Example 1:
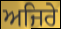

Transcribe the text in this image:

ਅਜਿਰੇ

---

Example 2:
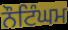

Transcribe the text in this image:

ਨੌਟਿੰਘਮ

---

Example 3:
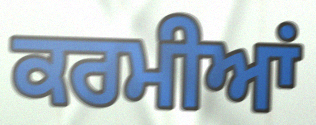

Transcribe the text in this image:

ਕਰਮੀਆਂ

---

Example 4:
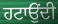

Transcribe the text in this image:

ਹਟਾਉਂਦੀ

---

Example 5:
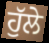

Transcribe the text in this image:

ਹੁੱਲੇ